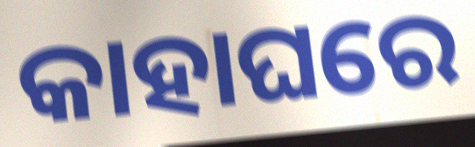
କାହାଘରେ